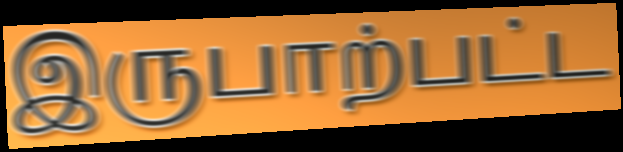
இருபாற்பட்ட